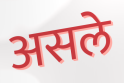
असले